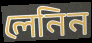
লেনিন